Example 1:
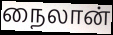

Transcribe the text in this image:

நைலான்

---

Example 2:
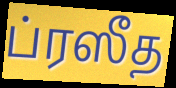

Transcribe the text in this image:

ப்ரஸீத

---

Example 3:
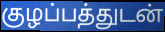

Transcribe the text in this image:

குழப்பத்துடன்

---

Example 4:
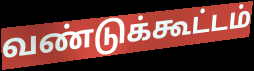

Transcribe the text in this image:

வண்டுக்கூட்டம்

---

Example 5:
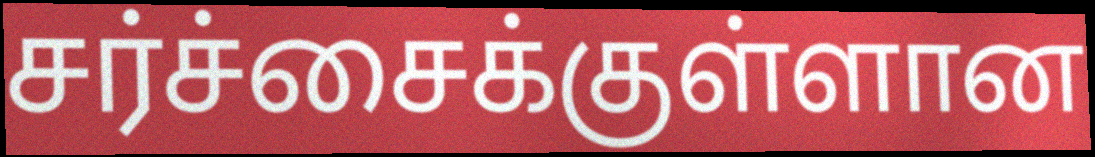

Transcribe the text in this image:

சர்ச்சைக்குள்ளான